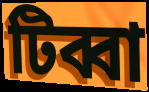
টিব্বা